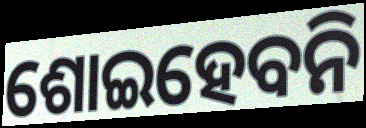
ଶୋଇହେବନି